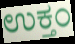
ಉಕ್ತಂ